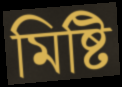
মিষ্টি